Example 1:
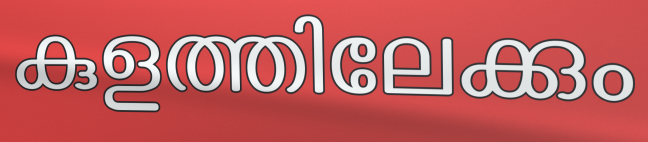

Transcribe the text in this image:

കുളത്തിലേക്കും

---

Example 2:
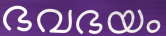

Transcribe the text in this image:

ഭവഭയം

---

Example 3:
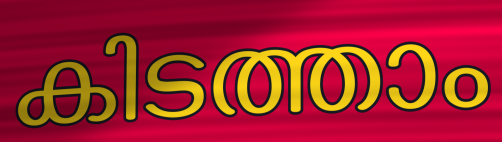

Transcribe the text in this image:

കിടത്താം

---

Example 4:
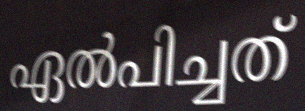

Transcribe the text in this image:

ഏൽപിച്ചത്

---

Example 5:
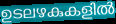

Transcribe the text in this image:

ഉടലഴകുകളിൽ